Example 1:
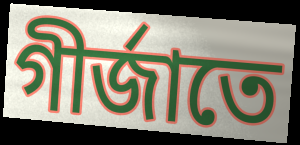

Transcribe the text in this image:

গীর্জাতে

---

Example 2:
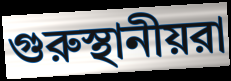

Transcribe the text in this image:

গুরুস্থানীয়রা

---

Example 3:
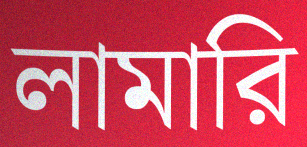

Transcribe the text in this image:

লামারি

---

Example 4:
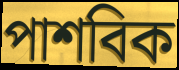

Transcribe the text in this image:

পাশবিক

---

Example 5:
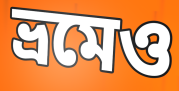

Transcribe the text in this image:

ভ্রমেও